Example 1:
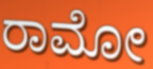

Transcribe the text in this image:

ರಾಮೋ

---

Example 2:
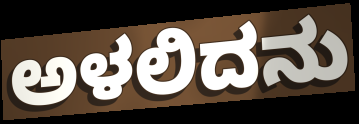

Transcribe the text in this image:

ಅಳಲಿದನು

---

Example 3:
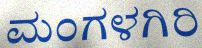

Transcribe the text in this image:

ಮಂಗಳಗಿರಿ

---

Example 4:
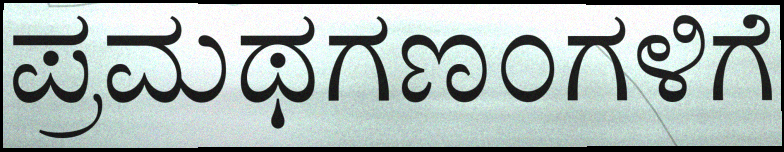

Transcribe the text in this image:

ಪ್ರಮಥಗಣಂಗಳಿಗೆ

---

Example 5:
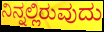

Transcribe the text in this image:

ನಿನ್ನಲ್ಲಿರುವುದು